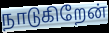
நாடுகிறேன்